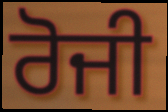
ਰੋਜੀ